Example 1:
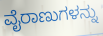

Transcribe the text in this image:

ವೈರಾಣುಗಳನ್ನು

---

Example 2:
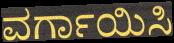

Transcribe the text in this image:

ವರ್ಗಾಯಿಸಿ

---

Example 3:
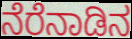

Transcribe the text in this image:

ನೆರೆನಾಡಿನ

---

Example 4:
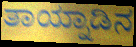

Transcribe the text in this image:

ತಾಯ್ನಾಡಿನ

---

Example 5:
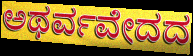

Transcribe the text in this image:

ಅಥರ್ವವೇದದ